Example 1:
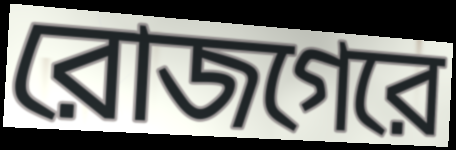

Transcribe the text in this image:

রোজগেরে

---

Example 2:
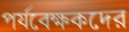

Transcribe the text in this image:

পর্যবেক্ষকদের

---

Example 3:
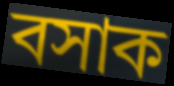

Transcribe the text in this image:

বসাক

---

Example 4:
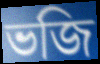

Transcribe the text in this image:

ভজি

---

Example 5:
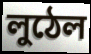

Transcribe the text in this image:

লুঠেল